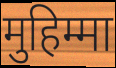
मुहिम्मा